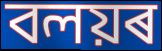
বলয়ৰ